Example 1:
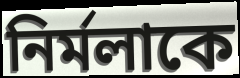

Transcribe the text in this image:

নির্মলাকে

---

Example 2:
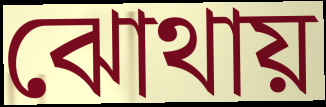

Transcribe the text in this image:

ঝোথায়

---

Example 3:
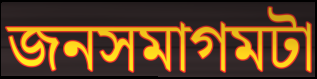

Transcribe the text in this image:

জনসমাগমটা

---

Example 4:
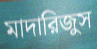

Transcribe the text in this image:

মাদারিজুস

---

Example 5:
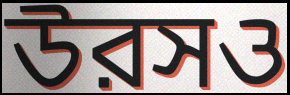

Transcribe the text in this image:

উরসও